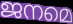
ജനമെ